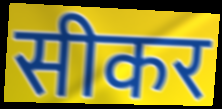
सीकर